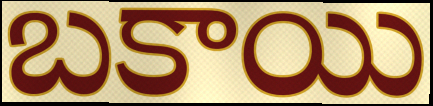
బకాయి